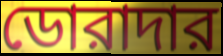
ডোরাদার